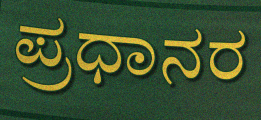
ಪ್ರಧಾನರ